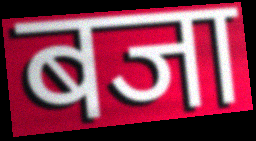
बजा